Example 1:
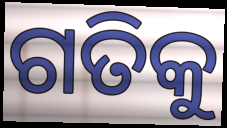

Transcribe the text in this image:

ଗତିକୁ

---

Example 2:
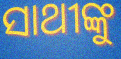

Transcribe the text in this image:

ସାଥୀଙ୍କୁ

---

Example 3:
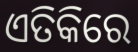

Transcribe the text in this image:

ଏତିକିରେ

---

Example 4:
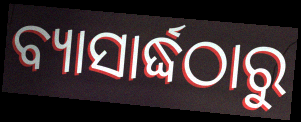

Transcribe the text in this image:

ବ୍ୟାସାର୍ଦ୍ଧଠାରୁ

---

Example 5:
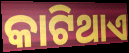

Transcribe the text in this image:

କାଟିଥାଏ